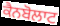
ਕੈਨਬੋਲਾਟ